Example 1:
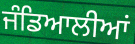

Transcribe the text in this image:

ਜੰਡਿਆਲੀਆਂ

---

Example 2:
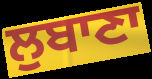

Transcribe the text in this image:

ਲੁਬਾਣਾ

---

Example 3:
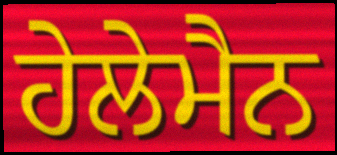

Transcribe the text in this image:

ਹੇਲੇਮੈਨ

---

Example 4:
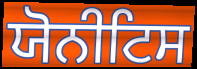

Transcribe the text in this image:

ਯੋਨੀਟਿਸ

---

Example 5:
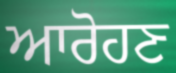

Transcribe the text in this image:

ਆਰੋਹਣ